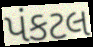
પંકટલ